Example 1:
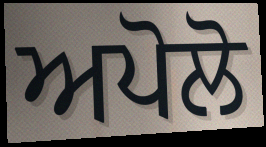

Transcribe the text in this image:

ਅਪੋਲੋ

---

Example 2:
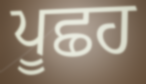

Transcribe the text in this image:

ਪੂਛਹ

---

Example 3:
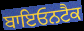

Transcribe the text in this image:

ਬਾਇਓਨਟੈਕ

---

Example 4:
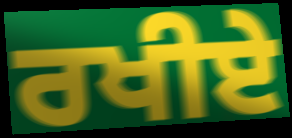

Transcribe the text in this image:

ਰਖੀਏ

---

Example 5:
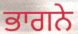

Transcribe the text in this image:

ਭਾਗਨੇ